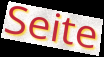
Seite